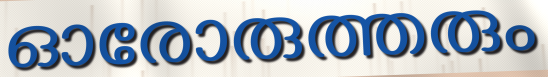
ഓരോരുത്തരും